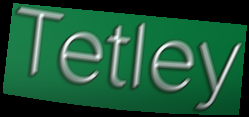
Tetley